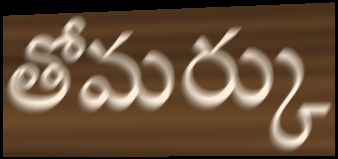
తోమర్కు